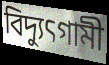
বিদ্যুৎগামী